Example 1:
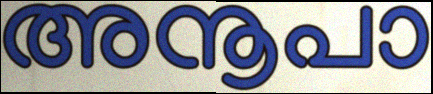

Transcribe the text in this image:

അനൂപാ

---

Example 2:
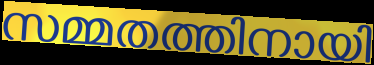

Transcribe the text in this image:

സമ്മതത്തിനായി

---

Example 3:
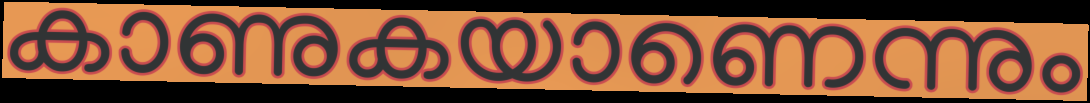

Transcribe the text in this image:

കാണുകയാണെന്നും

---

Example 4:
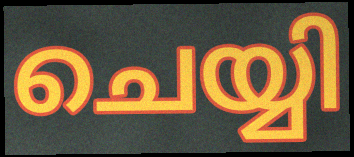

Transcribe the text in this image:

ചെയ്യി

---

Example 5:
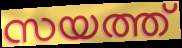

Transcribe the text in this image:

സയത്ത്